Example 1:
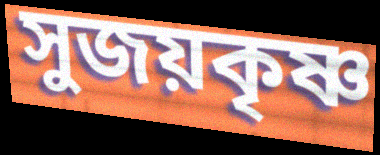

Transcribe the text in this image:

সুজয়কৃষ্ণ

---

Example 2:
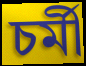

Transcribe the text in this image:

চর্মী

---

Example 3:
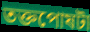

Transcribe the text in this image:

তক্তপোষটা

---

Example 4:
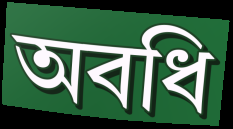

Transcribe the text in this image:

অবধি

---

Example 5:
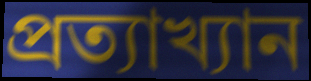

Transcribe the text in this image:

প্রত্যাখ্যান